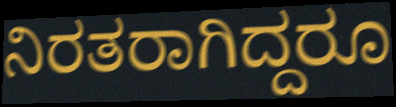
ನಿರತರಾಗಿದ್ದರೂ